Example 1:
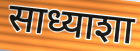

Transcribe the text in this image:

साध्याशा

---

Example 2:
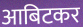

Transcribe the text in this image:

आबिटकर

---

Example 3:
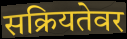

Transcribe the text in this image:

सक्रियतेवर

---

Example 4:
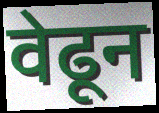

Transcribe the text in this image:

वेढून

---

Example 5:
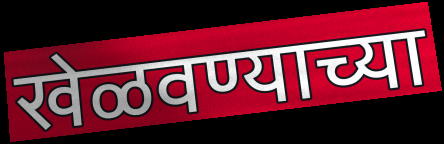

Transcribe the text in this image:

खेळवण्याच्या